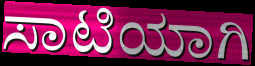
ಸಾಟಿಯಾಗಿ